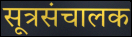
सूत्रसंचालक